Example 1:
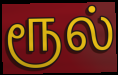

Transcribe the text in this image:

ரூல்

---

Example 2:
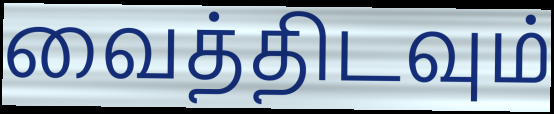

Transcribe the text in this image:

வைத்திடவும்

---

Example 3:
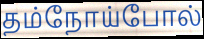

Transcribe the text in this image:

தம்நோய்போல்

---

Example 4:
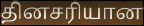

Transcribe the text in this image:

தினசரியான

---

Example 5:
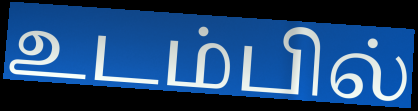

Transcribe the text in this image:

உடம்பில்